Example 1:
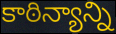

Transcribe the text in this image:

కాఠిన్యాన్ని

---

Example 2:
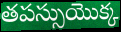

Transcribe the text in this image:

తపస్సుయొక్క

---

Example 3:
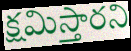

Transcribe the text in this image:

క్షమిస్తారని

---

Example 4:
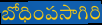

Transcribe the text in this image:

బోధింపసాగిరి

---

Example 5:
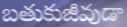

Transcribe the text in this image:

బతుకుజీవుడా